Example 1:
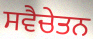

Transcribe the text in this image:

ਸਵੈਚੇਤਨ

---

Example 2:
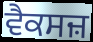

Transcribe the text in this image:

ਵੈਕਸਜ਼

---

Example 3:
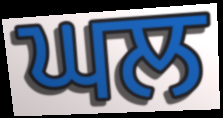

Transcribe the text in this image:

ਘਲ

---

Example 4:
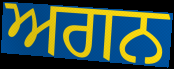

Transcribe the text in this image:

ਅਗਨ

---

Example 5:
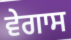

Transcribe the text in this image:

ਵੇਗਾਸ